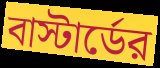
বাস্টার্ডের